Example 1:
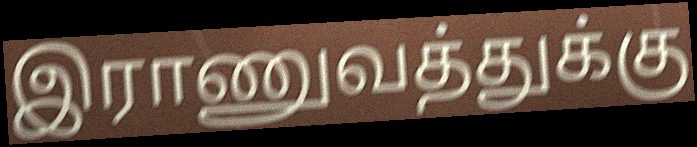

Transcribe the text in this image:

இராணுவத்துக்கு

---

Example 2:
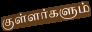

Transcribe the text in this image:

குள்ளர்களும்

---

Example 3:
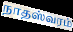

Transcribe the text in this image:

நாதஸ்வரம்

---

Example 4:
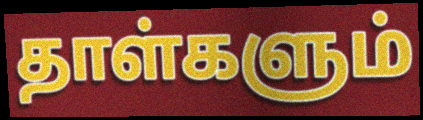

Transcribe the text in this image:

தாள்களும்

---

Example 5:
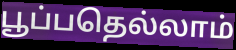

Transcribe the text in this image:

பூப்பதெல்லாம்